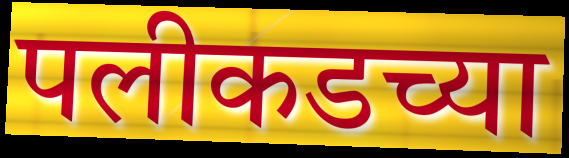
पलीकडच्या